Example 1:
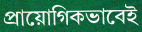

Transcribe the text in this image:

প্রায়োগিকভাবেই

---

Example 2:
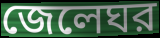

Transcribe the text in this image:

জেলেঘর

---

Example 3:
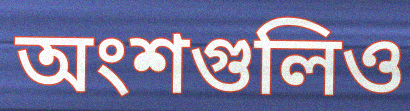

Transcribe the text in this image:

অংশগুলিও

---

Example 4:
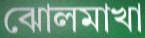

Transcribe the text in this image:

ঝোলমাখা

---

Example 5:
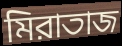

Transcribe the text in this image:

মিরাতাজ